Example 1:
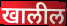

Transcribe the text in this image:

खालील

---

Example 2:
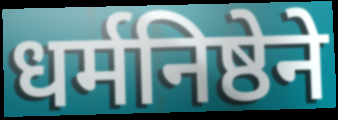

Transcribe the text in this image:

धर्मनिष्ठेने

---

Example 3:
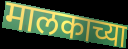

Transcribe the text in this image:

मालकाच्या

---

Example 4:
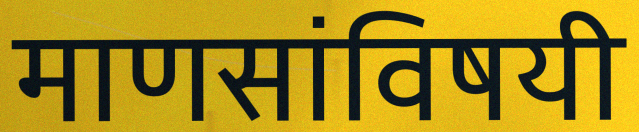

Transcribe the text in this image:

माणसांविषयी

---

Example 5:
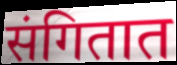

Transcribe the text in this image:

संगितात